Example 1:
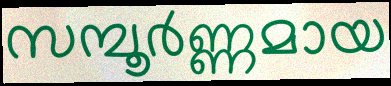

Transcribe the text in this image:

സമ്പൂർണ്ണമായ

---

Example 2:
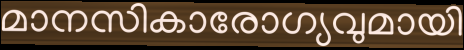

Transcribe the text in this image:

മാനസികാരോഗ്യവുമായി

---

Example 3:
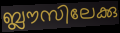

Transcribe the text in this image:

ബ്ലൗസിലേക്കു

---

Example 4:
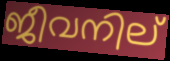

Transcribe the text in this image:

ജീവനില്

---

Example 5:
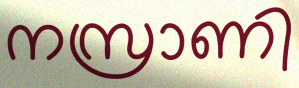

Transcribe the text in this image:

നസ്രാണി